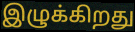
இழுக்கிறது